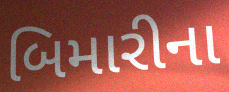
બિમારીના